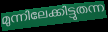
മുന്നിലേക്കിട്ടുതന്ന